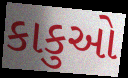
કાકુઓ